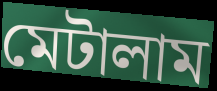
মেটালাম